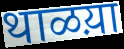
थाळय़ा